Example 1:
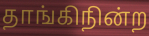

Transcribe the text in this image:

தாங்கிநின்ற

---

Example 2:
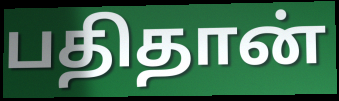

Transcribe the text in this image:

பதிதான்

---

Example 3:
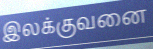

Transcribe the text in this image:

இலக்குவனை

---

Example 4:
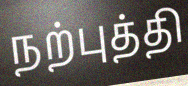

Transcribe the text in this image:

நற்புத்தி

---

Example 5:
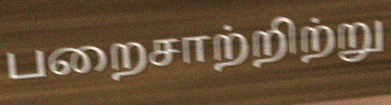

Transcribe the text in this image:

பறைசாற்றிற்று